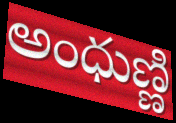
అంధుణ్ణి